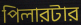
পিলারটার